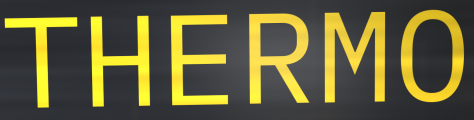
THERMO